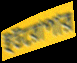
ইউরোপার